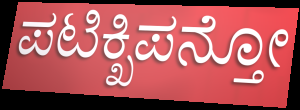
ಪಟಿಕ್ಖಿಪನ್ತೋ